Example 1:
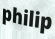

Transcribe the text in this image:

philip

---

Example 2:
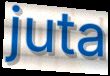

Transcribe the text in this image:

juta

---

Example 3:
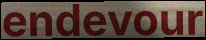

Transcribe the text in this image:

endevour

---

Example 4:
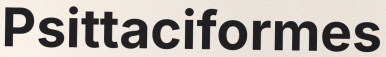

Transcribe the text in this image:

Psittaciformes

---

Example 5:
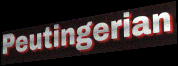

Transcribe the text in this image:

Peutingerian